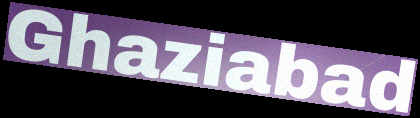
Ghaziabad